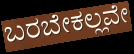
ಬರಬೇಕಲ್ಲವೇ